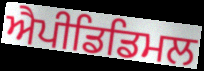
ਐਪੀਡਿਡਿਮਲ